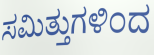
ಸಮಿತ್ತುಗಳಿಂದ